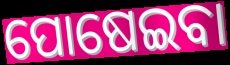
ପୋଷେଇବା